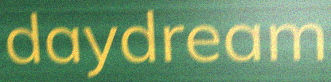
daydream